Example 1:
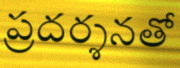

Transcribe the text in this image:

ప్రదర్శనతో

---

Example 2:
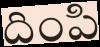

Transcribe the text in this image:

దింపి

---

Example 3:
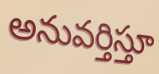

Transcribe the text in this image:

అనువర్తిస్తూ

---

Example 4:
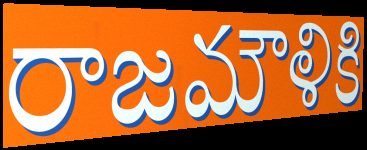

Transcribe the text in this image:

రాజమౌళికి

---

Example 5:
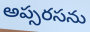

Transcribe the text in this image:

అప్సరసను